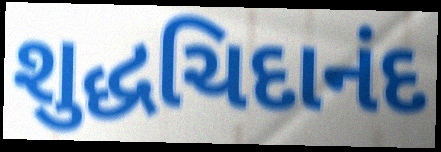
શુદ્ધચિદાનંદ